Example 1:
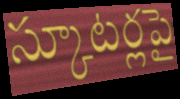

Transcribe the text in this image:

స్కూటర్లపై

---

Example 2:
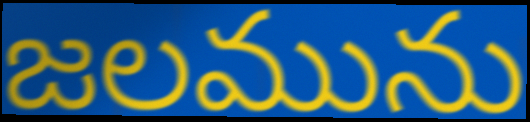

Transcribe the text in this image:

జలమును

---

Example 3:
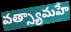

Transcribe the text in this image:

వత్స్యామహే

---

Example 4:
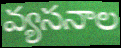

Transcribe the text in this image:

వ్యసనాల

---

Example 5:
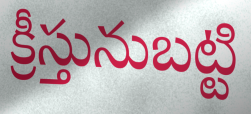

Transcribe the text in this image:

క్రీస్తునుబట్టి